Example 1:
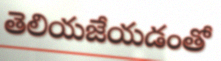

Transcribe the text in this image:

తెలియజేయడంతో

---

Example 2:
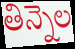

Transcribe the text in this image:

తిన్నెల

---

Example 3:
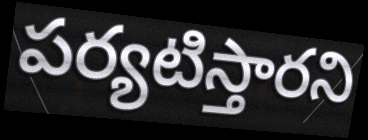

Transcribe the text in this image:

పర్యటిస్తారని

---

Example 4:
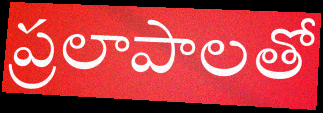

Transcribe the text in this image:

ప్రలాపాలతో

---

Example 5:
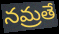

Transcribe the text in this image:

నమ్రతే